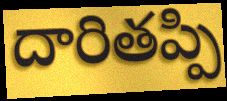
దారితప్పి